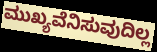
ಮುಖ್ಯವೆನಿಸುವುದಿಲ್ಲ